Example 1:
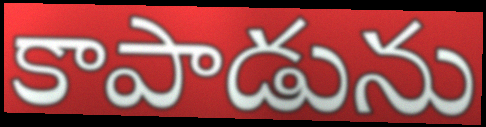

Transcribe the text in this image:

కాపాడును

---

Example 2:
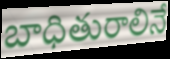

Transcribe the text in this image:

బాధితురాలినే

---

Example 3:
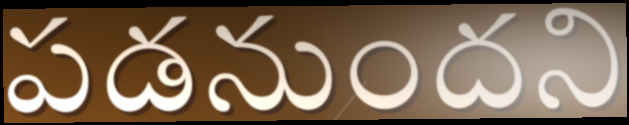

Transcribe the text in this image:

పడనుందని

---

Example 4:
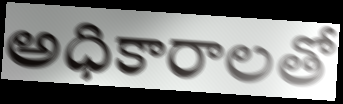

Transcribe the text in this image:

అధికారాలతో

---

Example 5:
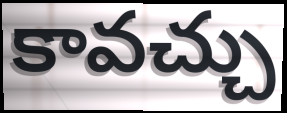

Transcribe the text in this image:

కావచ్చు